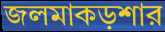
জলমাকড়শার